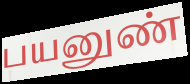
பயனுண்